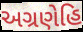
અગ્રણેહિ